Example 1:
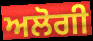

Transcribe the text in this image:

ਅਲੋਗੀ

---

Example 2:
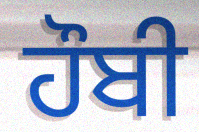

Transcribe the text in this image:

ਹੌਬੀ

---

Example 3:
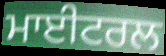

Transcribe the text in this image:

ਮਾਈਟਰਲ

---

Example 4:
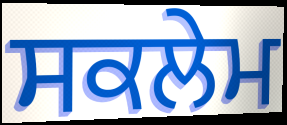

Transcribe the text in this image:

ਸਕਲੇਮ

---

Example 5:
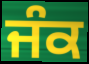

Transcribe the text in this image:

ਜੰਕ